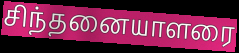
சிந்தனையாளரை